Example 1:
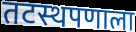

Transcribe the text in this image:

तटस्थपणाला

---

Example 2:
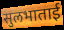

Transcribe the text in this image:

सुलभाताई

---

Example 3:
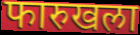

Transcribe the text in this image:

फारुखला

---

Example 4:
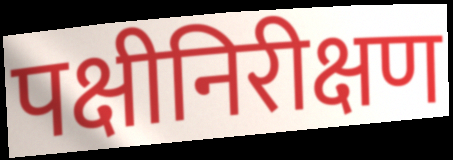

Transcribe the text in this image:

पक्षीनिरीक्षण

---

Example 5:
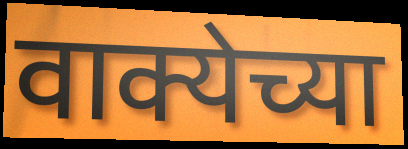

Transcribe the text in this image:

वाक्येच्या